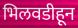
भिलवडीहून